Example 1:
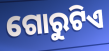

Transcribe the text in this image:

ଗୋରୁଟିଏ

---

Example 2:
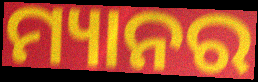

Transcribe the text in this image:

ମ୍ୟାନର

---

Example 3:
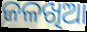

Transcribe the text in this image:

ଜଳଖିଆ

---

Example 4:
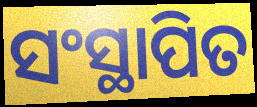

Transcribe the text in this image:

ସଂସ୍ଥାପିତ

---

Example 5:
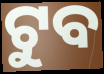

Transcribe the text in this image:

ଟୁବ